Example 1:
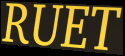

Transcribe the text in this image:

RUET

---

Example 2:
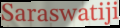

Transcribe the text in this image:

Saraswatiji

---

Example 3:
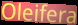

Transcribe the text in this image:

Oleifera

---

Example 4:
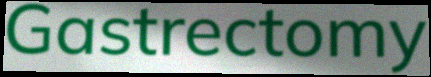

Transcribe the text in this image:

Gastrectomy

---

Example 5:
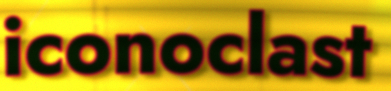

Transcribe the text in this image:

iconoclast